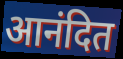
आनंदित